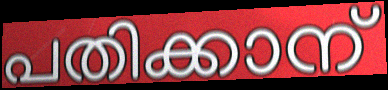
പതിക്കാന്